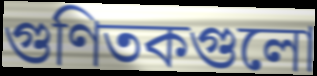
গুণিতকগুলো